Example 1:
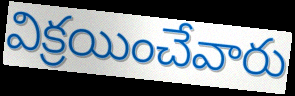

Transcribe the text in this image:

విక్రయించేవారు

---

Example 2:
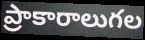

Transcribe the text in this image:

ప్రాకారాలుగల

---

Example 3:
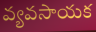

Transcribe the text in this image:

వ్యవసాయక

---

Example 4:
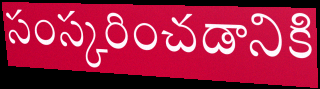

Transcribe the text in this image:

సంస్కరించడానికి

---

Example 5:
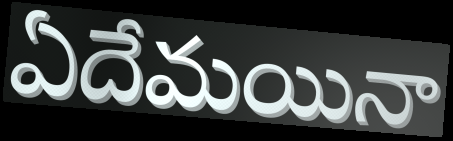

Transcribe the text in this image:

ఏదేమయినా